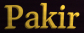
Pakir